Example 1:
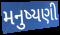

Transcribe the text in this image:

મનુષ્યણી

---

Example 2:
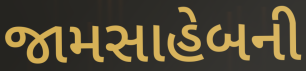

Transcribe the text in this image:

જામસાહેબની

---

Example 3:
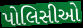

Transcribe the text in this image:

પોલિસીઓ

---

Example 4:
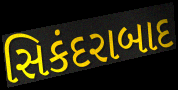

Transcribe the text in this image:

સિકંદરાબાદ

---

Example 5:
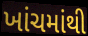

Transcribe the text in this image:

ખાંચમાંથી